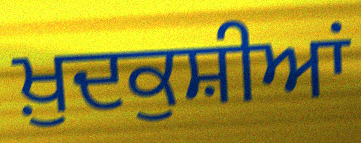
ਖ਼ੁਦਕੁਸ਼ੀਆਂ